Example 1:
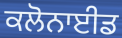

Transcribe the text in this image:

ਕਲੋਨਾਈਡ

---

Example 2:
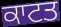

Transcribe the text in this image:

ਕਾਟਤ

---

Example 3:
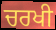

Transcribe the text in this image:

ਚਰਖੀ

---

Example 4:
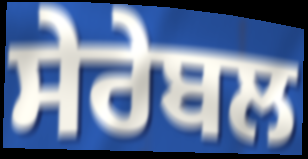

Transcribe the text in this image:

ਸੇਰੇਬਲ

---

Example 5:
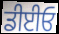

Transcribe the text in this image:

ਡੀਈਓ